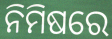
ନିମିଷରେ